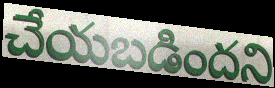
చేయబడిందని